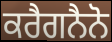
ਕਰੈਗਨੈਨੋ